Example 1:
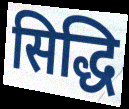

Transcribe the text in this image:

सिद्धि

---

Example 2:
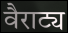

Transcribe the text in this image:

वैराट्य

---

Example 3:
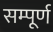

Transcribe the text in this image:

सम्‍पूर्ण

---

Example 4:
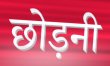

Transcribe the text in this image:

छोड़नी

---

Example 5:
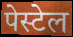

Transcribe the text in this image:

पेस्टेल